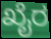
ಖೈರ